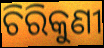
ଚିରିକୁଣୀ